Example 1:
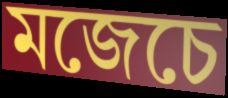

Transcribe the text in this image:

মজেচে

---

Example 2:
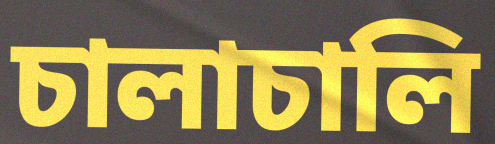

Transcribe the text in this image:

চালাচালি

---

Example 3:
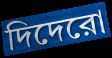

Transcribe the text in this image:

দিদেরো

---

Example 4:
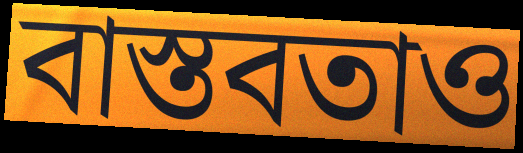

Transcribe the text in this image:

বাস্তবতাও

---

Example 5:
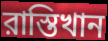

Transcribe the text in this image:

রাস্তিখান